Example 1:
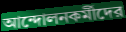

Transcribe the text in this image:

আন্দোলনকর্মীদের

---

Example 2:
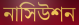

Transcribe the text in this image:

নাসিউশন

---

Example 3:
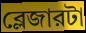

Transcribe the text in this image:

ব্লেজারটা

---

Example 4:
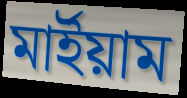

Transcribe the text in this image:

মার্ইয়াম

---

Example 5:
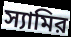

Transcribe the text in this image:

স্যামির